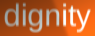
dignity